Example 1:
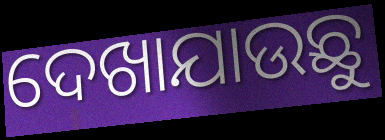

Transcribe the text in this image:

ଦେଖାଯାଉଛୁ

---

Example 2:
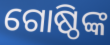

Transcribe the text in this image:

ଗୋଷ୍ଠିଙ୍କ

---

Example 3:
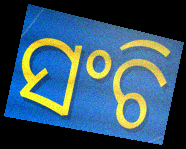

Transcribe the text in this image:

ସଂଚି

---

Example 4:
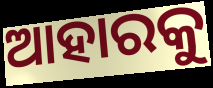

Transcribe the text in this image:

ଆହାରକୁ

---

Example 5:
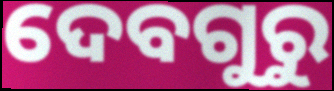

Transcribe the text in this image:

ଦେବଗୁରୁ